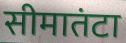
सीमातंटा